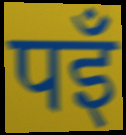
पइँ